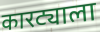
कारट्याला